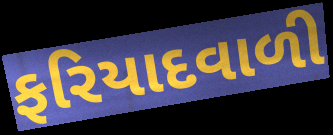
ફરિયાદવાળી